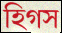
হিগস